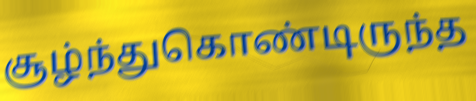
சூழ்ந்துகொண்டிருந்த